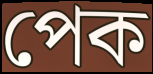
পেক